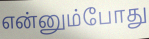
என்னும்போது